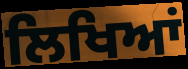
ਲਿਖਿਆਂ